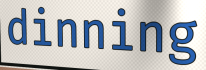
dinning